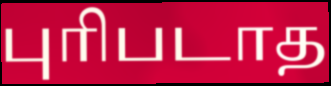
புரிபடாத